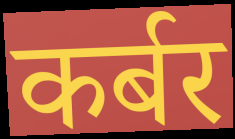
कर्बर